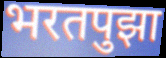
भरतपुझा